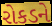
રોકડને